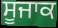
ਸੂਜਾਕ